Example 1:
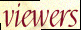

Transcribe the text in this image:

viewers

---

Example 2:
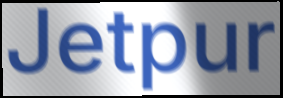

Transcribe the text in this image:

Jetpur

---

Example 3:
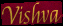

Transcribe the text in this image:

Vishva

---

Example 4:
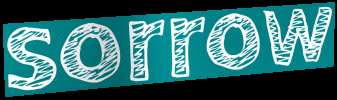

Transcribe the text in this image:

sorrow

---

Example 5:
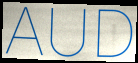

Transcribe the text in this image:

AUD